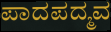
ಪಾದಪದ್ಮವ